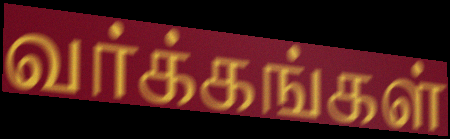
வர்க்கங்கள்